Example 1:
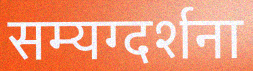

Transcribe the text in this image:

सम्यग्दर्शना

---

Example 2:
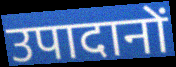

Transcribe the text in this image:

उपादानों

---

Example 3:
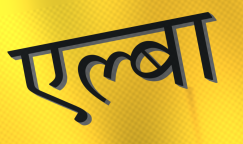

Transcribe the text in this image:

एल्बा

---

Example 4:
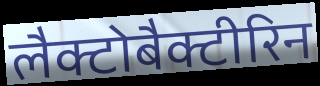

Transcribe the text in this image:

लैक्टोबैक्टीरिन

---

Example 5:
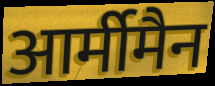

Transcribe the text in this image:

आर्मीमैन